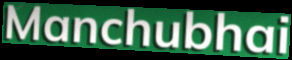
Manchubhai